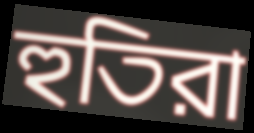
হুতিরা